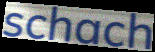
schach